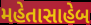
મહેતાસાહેબ